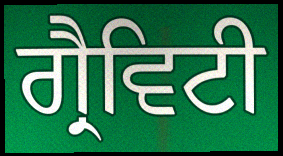
ਗ੍ਰੈਵਿਟੀ